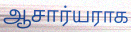
ஆசார்யராக